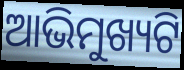
ଆଭିମୁଖ୍ୟଟି